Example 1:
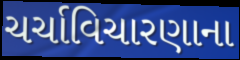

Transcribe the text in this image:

ચર્ચાવિચારણાના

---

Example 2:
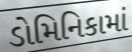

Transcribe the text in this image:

ડોમિનિકામાં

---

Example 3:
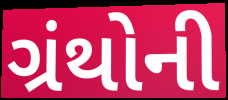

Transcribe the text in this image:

ગ્રંથોની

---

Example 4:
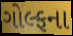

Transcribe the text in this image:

ગોલ્ફના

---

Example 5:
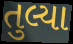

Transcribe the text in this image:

તુલ્યા